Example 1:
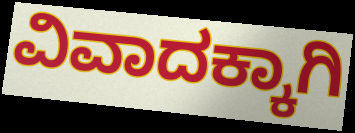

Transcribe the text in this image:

ವಿವಾದಕ್ಕಾಗಿ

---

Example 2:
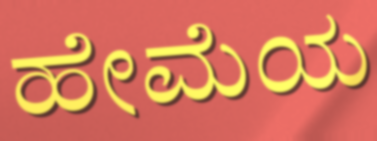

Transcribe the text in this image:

ಹೇಮೆಯ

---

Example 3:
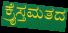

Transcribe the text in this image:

ಕ್ರೈಸ್ತಮತದ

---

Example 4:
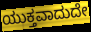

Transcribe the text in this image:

ಯುಕ್ತವಾದುದೇ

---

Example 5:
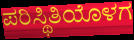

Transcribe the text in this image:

ಪರಿಸ್ಥಿತಿಯೊಳಗ